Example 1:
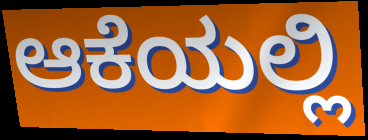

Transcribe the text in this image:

ಆಕೆಯಲ್ಲಿ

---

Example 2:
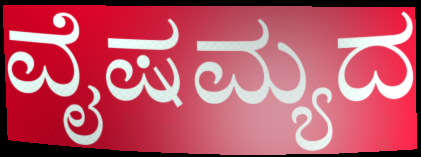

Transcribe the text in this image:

ವೈಷಮ್ಯದ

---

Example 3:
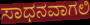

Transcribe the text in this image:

ಸಾಧನವಾಗಲಿ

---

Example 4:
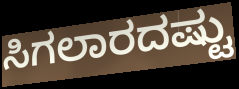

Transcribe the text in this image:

ಸಿಗಲಾರದಷ್ಟು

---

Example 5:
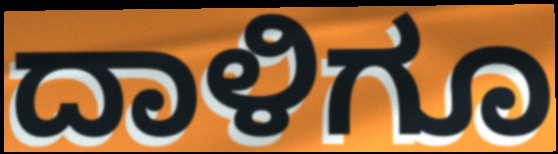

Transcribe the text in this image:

ದಾಳಿಗೂ